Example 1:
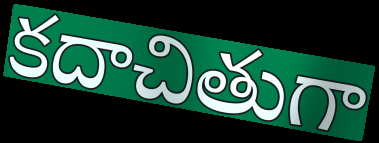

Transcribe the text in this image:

కదాచితుగా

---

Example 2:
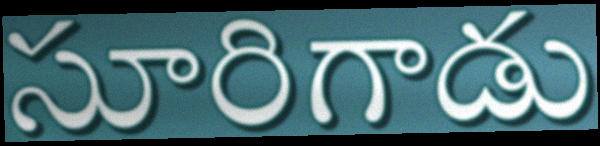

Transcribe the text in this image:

సూరిగాడు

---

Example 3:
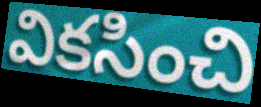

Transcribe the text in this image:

వికసించి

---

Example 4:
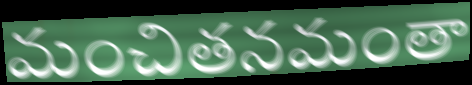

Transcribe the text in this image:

మంచితనమంతా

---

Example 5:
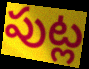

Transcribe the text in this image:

పుట్ల